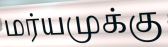
மர்யமுக்கு